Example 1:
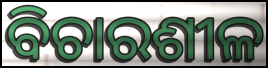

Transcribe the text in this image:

ବିଚାରଶୀଳ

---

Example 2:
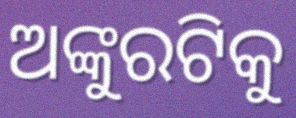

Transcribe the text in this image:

ଅଙ୍କୁରଟିକୁ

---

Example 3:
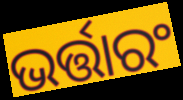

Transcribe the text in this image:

ଭର୍ତ୍ତାରଂ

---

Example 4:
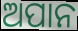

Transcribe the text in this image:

ଅପାନ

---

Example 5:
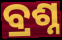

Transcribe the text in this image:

ବ୍ରଶ୍ନ